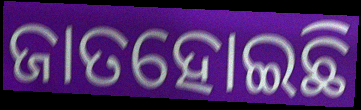
ଜାତହୋଇଛି